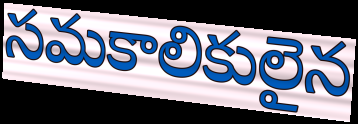
సమకాలికులైన